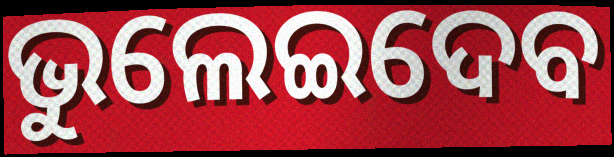
ଭୁଲେଇଦେବ